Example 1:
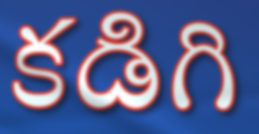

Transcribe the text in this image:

కడిగి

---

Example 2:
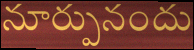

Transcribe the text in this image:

నూర్పునందు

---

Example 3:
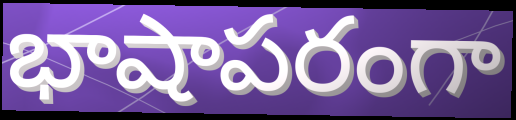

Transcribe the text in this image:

భాషాపరంగా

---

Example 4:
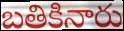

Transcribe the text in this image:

బతికినారు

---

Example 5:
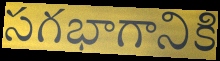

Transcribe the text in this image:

సగభాగానికి